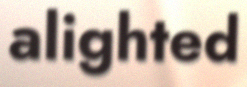
alighted